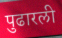
पुढारली